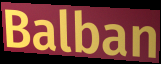
Balban